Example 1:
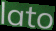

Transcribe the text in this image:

lato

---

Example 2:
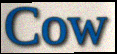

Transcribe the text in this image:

Cow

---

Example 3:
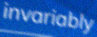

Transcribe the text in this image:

invariably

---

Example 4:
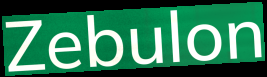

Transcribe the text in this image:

Zebulon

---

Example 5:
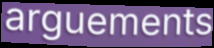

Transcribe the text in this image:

arguements